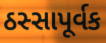
ઠસ્સાપૂર્વક